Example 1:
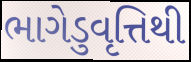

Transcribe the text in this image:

ભાગેડુવૃત્તિથી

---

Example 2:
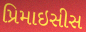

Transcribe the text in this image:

પ્રિમાઇસીસ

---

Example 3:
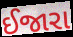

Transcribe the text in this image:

ઈજારા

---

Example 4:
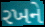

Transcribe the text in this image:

રખને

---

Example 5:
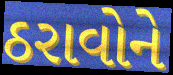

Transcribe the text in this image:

ઠરાવોને